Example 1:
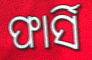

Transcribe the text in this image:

ଫାର୍ସି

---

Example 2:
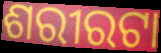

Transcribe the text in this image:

ଶରୀରଟା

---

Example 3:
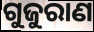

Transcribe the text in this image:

ଗୁଜୁରାଣ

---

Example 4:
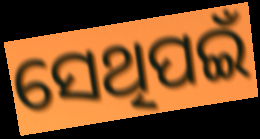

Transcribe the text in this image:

ସେଥିପଇଁ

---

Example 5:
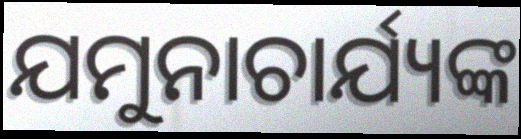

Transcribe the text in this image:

ଯମୁନାଚାର୍ଯ୍ୟଙ୍କ